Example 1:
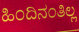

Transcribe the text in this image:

ಹಿಂದಿನಂತಿಲ್ಲ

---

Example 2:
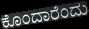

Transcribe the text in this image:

ಕೊಂದಾರೆಂದು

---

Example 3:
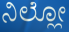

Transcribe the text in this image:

ನಿಲ್ಲೋ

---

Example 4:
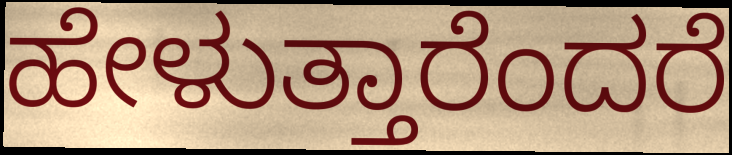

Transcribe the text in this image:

ಹೇಳುತ್ತಾರೆಂದರೆ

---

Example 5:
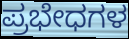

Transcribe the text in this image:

ಪ್ರಭೇಧಗಳ